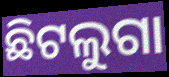
ଛିଟଲୁଗା